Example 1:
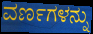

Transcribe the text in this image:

ವರ್ಣಗಳನ್ನು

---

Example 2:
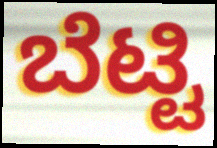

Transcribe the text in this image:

ಬೆಟ್ಟಿ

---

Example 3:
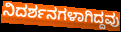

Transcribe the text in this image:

ನಿದರ್ಶನಗಳಾಗಿದ್ದವು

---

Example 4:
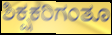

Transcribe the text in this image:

ಶಿಕ್ಷಕರಿಗಂತೂ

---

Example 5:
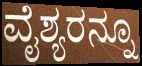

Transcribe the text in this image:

ವೈಶ್ಯರನ್ನೂ